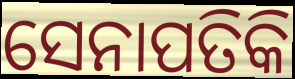
ସେନାପତିକି